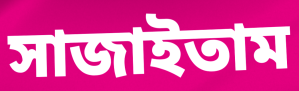
সাজাইতাম